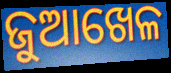
ଜୁଆଖେଳ